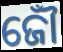
ଜୌଁ